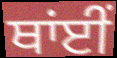
ਥਾਂਈਂ